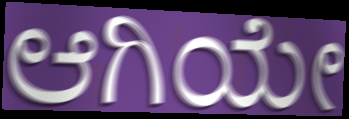
ಆಗಿಯೇ